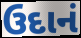
ઉદાનં